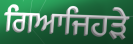
ਗਿਆਜਿਹੜੇ